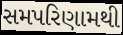
સમપરિણામથી